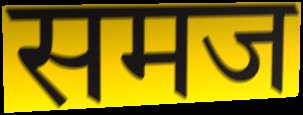
समज